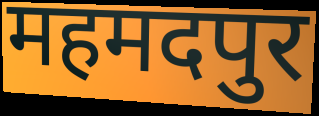
महमदपुर